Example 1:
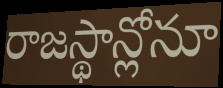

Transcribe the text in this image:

రాజస్థాన్లోనూ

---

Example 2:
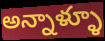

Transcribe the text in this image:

అన్నాళ్ళూ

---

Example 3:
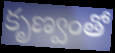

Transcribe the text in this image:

కృణ్వంతో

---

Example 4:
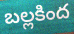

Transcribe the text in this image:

బల్లకింద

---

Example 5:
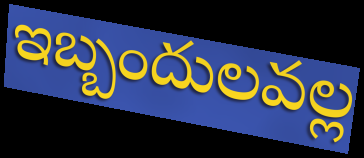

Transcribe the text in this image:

ఇబ్బందులవల్ల